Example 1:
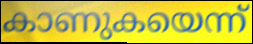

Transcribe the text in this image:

കാണുകയെന്ന്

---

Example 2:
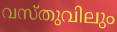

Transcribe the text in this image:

വസ്തുവിലും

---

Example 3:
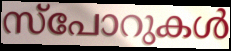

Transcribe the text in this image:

സ്പോറുകൾ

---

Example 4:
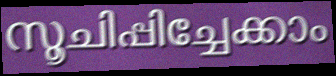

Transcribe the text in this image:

സൂചിപ്പിച്ചേക്കാം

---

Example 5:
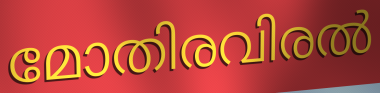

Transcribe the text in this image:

മോതിരവിരൽ